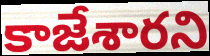
కాజేశారని